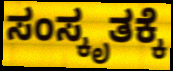
ಸಂಸ್ಕೃತಕ್ಕೆ